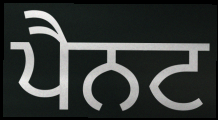
ਪੈਨਟ